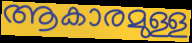
ആകാരമുള്ള